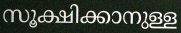
സൂക്ഷിക്കാനുള്ള